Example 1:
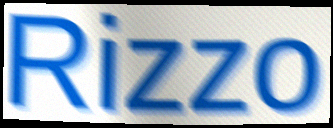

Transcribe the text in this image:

Rizzo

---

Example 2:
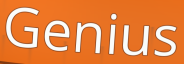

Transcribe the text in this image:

Genius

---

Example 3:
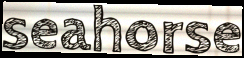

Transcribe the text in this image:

seahorse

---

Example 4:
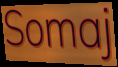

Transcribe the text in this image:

Somaj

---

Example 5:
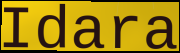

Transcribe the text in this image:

Idara